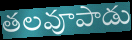
తలవూపాడు